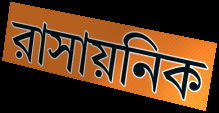
রাসায়নিক